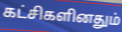
கட்சிகளினதும்